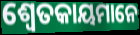
ଶ୍ୱେତକାୟମାନେ